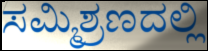
ಸಮ್ಮಿಶ್ರಣದಲ್ಲಿ